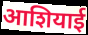
आशियाई